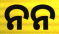
ନନ